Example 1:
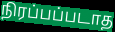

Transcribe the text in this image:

நிரப்பப்படாத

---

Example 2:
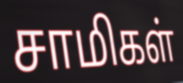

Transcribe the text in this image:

சாமிகள்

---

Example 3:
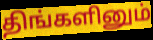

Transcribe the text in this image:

திங்களினும்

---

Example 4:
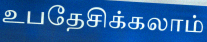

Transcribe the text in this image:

உபதேசிக்கலாம்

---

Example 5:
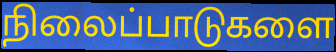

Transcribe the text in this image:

நிலைப்பாடுகளை